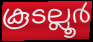
കൂടല്ലൂർ